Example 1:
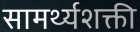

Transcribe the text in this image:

सामर्थ्यशक्ती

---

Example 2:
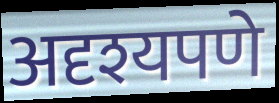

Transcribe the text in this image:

अदृश्यपणे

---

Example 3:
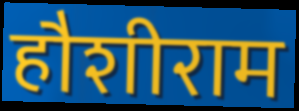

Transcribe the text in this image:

हौशीराम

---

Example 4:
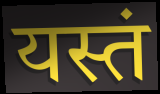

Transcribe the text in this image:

यस्तं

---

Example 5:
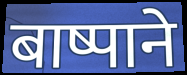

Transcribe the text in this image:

बाष्पाने